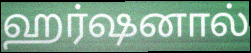
ஹர்ஷனால்